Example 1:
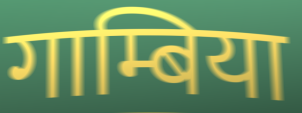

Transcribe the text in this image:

गाम्बिया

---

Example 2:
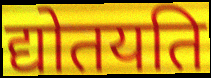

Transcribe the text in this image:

द्योतयति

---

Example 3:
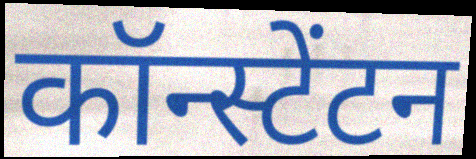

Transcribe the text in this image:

कॉन्स्टेंटन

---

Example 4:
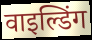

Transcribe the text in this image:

वाइल्डिंग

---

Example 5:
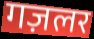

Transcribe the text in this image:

गज़लर